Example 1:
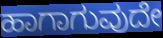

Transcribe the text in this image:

ಹಾಗಾಗುವುದೇ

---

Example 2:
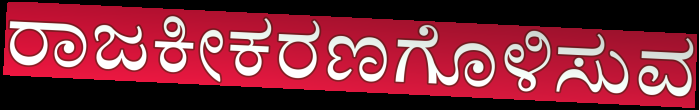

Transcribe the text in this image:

ರಾಜಕೀಕರಣಗೊಳಿಸುವ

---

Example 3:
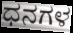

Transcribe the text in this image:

ಧನಗಳ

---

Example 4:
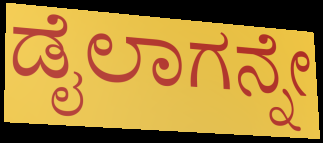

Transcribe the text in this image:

ಡೈಲಾಗನ್ನೇ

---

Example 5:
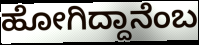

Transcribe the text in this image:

ಹೋಗಿದ್ದಾನೆಂಬ